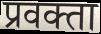
प्रवक्ता